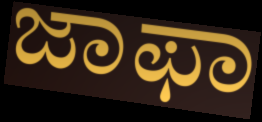
ಜಾಫಾ